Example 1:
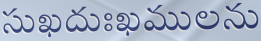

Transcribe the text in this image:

సుఖదుఃఖములను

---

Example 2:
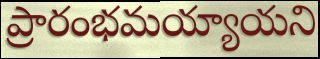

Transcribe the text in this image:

ప్రారంభమయ్యాయని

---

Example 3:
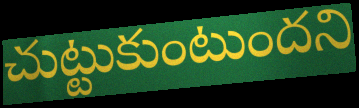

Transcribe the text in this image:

చుట్టుకుంటుందని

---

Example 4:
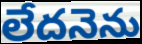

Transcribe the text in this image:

లేదనెను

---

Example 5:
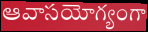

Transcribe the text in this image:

ఆవాసయోగ్యంగా